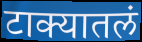
टाक्यातलं